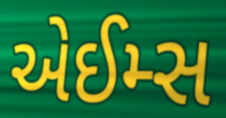
એઈમ્સ